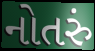
નોતરું